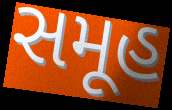
સમૂહ